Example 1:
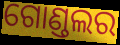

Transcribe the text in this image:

ଗୋଣ୍ଡଲର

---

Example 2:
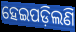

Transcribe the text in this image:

ହେଇପଡ଼ିଲଣି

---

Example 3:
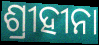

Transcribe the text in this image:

ଶ୍ରୀହୀନା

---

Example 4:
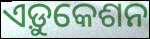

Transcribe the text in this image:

ଏଡ଼ୁକେଶନ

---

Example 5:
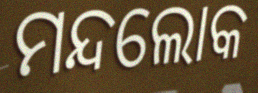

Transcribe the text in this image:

ମନ୍ଦଲୋକ